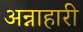
अन्नाहारी